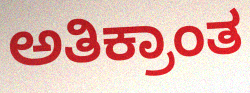
ಅತಿಕ್ರಾಂತ